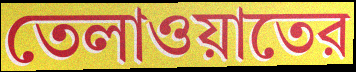
তেলাওয়াতের